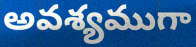
అవశ్యముగా